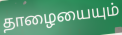
தாழையையும்